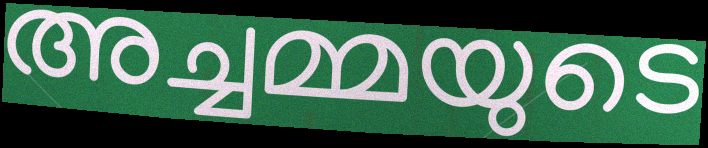
അച്ചമ്മയുടെ